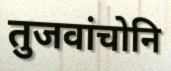
तुजवांचोनि